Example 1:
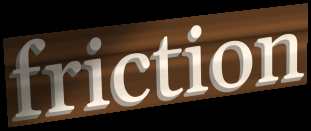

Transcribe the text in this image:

friction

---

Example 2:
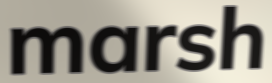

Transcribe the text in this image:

marsh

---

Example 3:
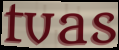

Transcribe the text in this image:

tuas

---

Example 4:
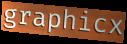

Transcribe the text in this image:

graphicx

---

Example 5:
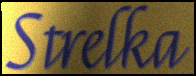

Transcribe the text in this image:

Strelka